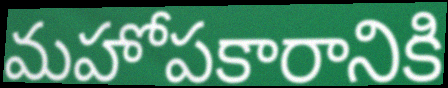
మహోపకారానికి